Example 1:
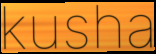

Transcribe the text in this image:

kusha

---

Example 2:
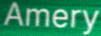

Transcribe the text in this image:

Amery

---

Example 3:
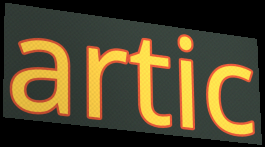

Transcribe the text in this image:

artic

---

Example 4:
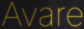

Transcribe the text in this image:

Avare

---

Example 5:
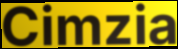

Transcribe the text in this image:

Cimzia